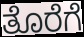
ತೊರೆಗೆ